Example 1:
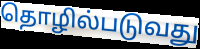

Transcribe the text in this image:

தொழில்படுவது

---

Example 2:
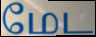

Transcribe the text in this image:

மேட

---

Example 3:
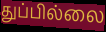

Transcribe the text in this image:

துப்பில்லை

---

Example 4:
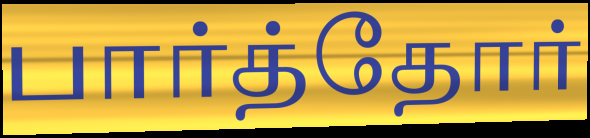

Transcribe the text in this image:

பார்த்தோர்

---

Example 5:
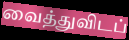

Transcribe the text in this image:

வைத்துவிடப்